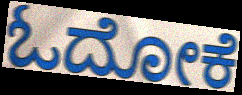
ಓದೋಕೆ